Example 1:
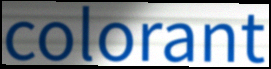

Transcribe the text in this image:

colorant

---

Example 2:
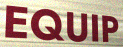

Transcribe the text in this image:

EQUIP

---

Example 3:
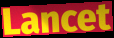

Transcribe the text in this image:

Lancet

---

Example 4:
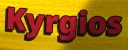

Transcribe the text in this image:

Kyrgios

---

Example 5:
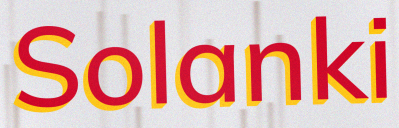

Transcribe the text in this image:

Solanki